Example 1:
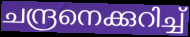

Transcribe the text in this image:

ചന്ദ്രനെക്കുറിച്ച്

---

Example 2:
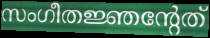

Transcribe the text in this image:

സംഗീതജ്ഞന്റേത്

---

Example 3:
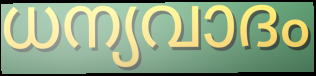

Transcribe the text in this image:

ധന്യവാദം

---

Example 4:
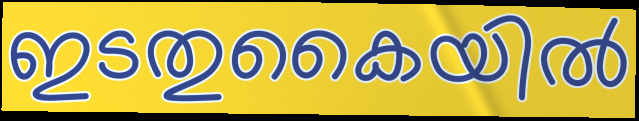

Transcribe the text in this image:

ഇടതുകൈയിൽ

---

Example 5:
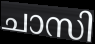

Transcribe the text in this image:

ചാസി